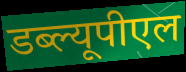
डब्ल्यूपीएल